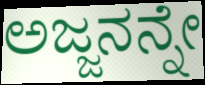
ಅಜ್ಜನನ್ನೇ